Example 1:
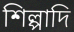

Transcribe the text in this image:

শিল্পাদি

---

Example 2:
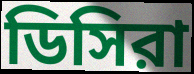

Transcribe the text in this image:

ডিসিরা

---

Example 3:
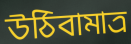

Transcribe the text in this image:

উঠিবামাত্র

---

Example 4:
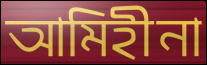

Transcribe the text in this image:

আমিহীনা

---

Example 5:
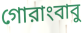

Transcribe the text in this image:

গোরাংবাবু